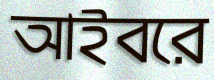
আইবরে